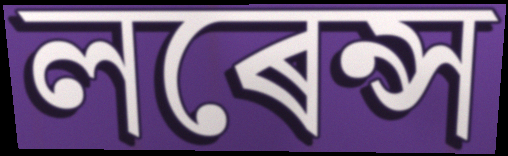
লৰেন্স